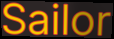
Sailor